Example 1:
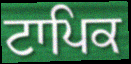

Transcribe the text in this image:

ਟਾਪਿਕ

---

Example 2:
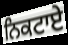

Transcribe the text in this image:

ਨਿਕਟਾਏ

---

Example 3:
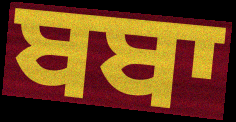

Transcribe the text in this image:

ਬਬਾ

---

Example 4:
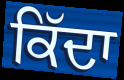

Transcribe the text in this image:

ਕਿੱਦਾ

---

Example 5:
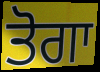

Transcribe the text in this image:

ਤੋਗਾ